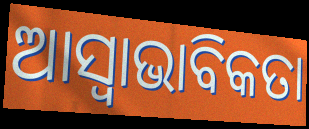
ଆସ୍ବାଭାବିକତା